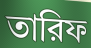
তারিফ